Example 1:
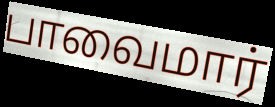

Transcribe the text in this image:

பாவைமார்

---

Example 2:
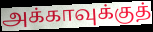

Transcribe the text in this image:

அக்காவுக்குத்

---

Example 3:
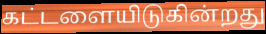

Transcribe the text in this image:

கட்டளையிடுகின்றது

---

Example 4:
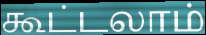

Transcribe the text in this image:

கூட்டலாம்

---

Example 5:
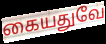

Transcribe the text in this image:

கையதுவே